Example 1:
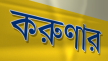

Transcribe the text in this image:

করুণার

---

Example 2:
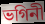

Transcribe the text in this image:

ভগিনী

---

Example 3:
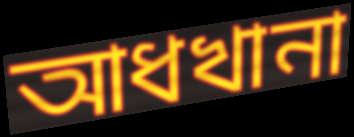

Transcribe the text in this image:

আধখানা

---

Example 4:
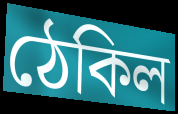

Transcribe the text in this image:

ঠেকিল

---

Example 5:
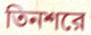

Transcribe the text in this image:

তিনশরে